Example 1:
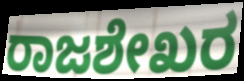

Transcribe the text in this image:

ರಾಜಶೇಖರ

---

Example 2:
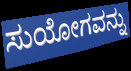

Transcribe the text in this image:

ಸುಯೋಗವನ್ನು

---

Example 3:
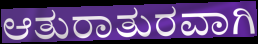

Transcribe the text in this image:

ಆತುರಾತುರವಾಗಿ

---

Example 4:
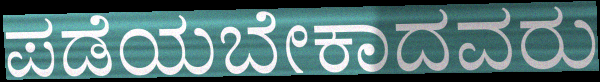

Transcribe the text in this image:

ಪಡೆಯಬೇಕಾದವರು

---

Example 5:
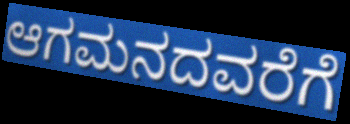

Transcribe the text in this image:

ಆಗಮನದವರೆಗೆ